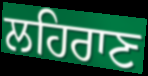
ਲਹਿਰਾਣ